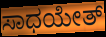
ಸಾಧಯೇತ್